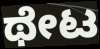
ಥೇಟ